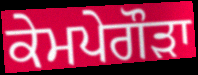
ਕੇਮਪੇਗੌੜਾ